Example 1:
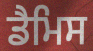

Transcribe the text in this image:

ਡੈਮਿਸ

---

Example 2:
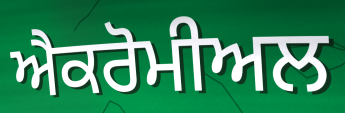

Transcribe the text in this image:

ਐਕਰੋਮੀਅਲ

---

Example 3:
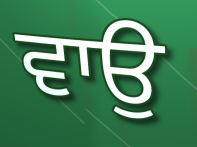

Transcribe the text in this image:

ਵਾਉ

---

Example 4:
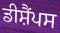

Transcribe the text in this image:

ਡੀਸ਼ੈਂਪਸ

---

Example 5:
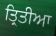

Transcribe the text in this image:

ਤ੍ਰਿਤੀਆ